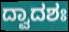
ದ್ವಾದಶಃ